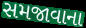
સમજાવાના